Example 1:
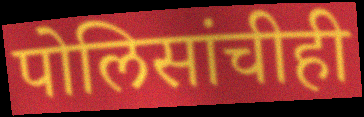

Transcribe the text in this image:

पोलिसांचीही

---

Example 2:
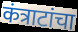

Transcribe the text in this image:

कंत्राटांचा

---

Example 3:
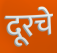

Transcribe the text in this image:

दूरचे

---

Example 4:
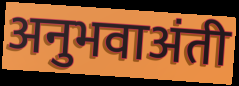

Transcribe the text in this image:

अनुभवाअंती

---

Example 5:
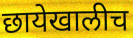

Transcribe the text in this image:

छायेखालीच